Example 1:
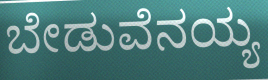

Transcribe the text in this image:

ಬೇಡುವೆನಯ್ಯ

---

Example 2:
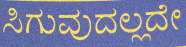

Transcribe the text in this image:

ಸಿಗುವುದಲ್ಲದೇ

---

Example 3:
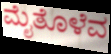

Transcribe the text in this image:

ಮೈತೊಳೆವ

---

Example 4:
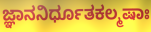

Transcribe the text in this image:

ಜ್ಞಾನನಿರ್ಧೂತಕಲ್ಮಷಾಃ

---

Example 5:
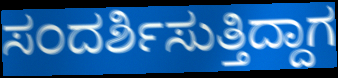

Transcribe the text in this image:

ಸಂದರ್ಶಿಸುತ್ತಿದ್ದಾಗ